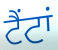
ਟੈਂਟਾਂ